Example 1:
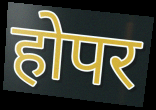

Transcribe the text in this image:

होपर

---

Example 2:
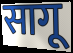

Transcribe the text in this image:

सागू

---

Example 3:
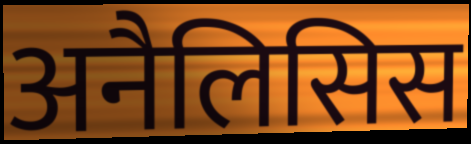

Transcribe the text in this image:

अनैलिसिस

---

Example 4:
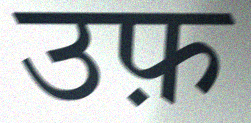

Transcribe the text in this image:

उफ़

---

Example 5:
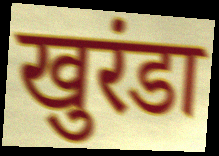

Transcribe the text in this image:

खुरंडा